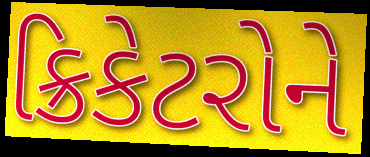
ક્રિકેટરોને